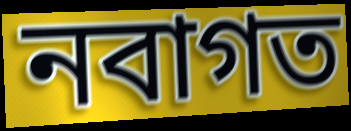
নবাগত